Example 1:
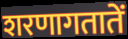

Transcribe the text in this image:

शरणागतातें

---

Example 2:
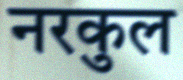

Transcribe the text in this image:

नरकुल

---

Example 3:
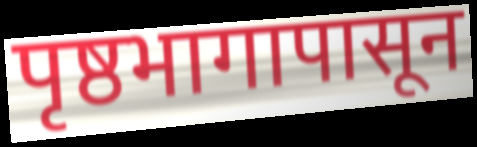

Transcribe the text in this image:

पृष्ठभागापासून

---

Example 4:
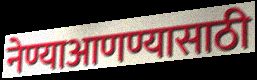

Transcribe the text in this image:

नेण्याआणण्यासाठी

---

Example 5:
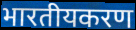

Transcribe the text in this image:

भारतीयकरण